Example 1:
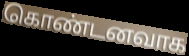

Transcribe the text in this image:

கொண்டனவாக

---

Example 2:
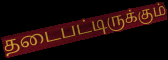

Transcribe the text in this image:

தடைபட்டிருக்கும்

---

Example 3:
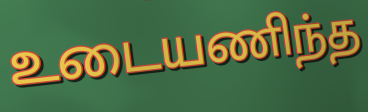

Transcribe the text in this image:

உடையணிந்த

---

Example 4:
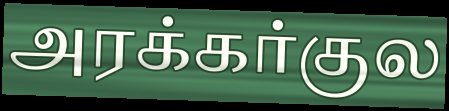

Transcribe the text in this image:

அரக்கர்குல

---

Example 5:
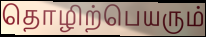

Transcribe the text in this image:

தொழிற்பெயரும்